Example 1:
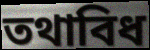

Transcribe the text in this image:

তথাবিধ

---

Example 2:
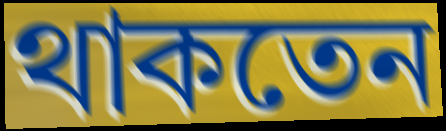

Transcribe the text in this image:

থাকতেন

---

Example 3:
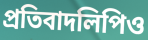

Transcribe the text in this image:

প্রতিবাদলিপিও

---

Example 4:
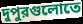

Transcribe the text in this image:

দুপুরগুলোতে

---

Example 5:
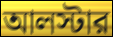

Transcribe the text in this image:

আলস্টার